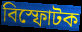
বিস্ফোটক